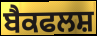
ਬੈਕਫਲਸ਼